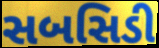
સબસિડી